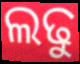
ଲଢୁ